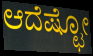
ಆದೆಷ್ಟೋ